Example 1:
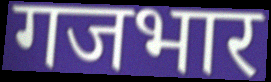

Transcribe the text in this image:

गजभार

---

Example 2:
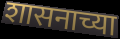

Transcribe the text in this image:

शासनाच्या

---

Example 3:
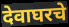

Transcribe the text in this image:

देवाघरचे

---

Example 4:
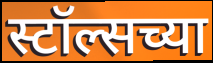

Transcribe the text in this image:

स्टॉल्सच्या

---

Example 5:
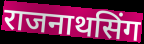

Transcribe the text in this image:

राजनाथसिंग